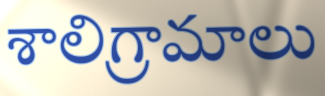
శాలిగ్రామాలు